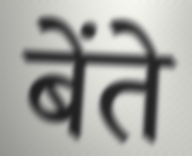
बेंते